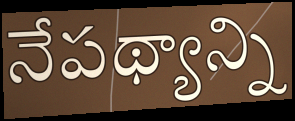
నేపథ్యాన్ని